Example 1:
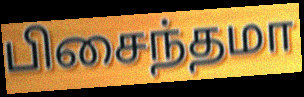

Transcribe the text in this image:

பிசைந்தமா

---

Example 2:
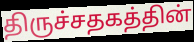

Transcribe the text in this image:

திருச்சதகத்தின்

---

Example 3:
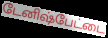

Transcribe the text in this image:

டேனிஷ்பேட்டை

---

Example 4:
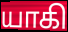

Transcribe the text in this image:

யாகி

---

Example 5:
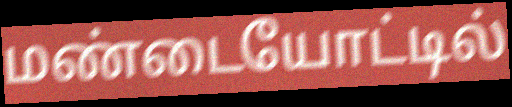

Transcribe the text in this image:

மண்டையோட்டில்